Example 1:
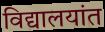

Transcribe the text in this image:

विद्यालयांत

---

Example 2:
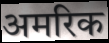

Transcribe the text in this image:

अमरिक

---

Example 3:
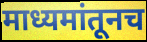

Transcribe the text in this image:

माध्यमांतूनच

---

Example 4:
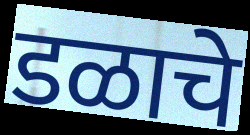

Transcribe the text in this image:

डळाचे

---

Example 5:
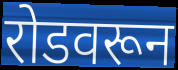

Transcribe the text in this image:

रोडवरून